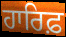
ਹਾਰਿਫ਼